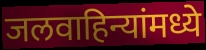
जलवाहिन्यांमध्ये